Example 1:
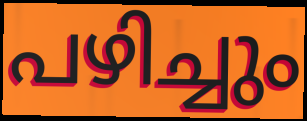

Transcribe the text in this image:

പഴിച്ചും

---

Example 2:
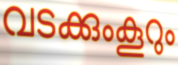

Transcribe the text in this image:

വടക്കുംകൂറും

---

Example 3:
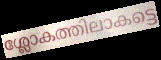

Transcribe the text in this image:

ശ്ലോകത്തിലാകട്ടെ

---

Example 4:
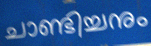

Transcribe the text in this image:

ചാണ്ടിച്ചനും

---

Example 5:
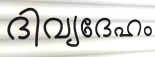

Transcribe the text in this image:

ദിവ്യദേഹം